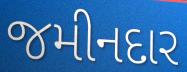
જમીનદાર